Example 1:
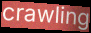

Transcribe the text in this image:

crawling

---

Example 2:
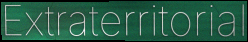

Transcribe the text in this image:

Extraterritorial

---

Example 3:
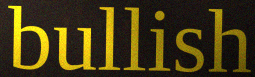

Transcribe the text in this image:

bullish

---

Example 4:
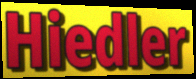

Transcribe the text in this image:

Hiedler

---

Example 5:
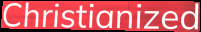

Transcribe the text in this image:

Christianized